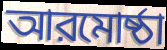
আরমোষ্ঠা